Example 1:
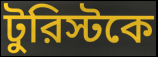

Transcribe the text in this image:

টুরিস্টকে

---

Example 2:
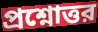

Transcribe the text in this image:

প্রশ্নোত্তর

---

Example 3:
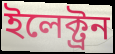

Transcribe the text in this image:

ইলেক্ট্রন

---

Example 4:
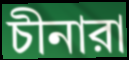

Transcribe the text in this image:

চীনারা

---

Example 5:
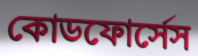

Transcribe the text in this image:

কোডফোর্সেস